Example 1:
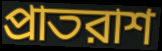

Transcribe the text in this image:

প্রাতরাশ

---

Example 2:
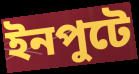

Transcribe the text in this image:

ইনপুটে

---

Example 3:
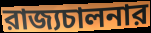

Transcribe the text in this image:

রাজ্যচালনার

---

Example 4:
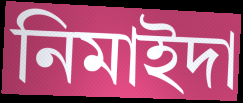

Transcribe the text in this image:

নিমাইদা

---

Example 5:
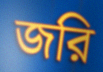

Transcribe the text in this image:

জরি